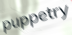
puppetry